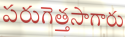
పరుగెత్తసాగారు